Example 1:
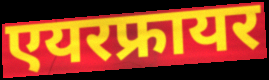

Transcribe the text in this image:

एयरफ्रायर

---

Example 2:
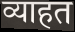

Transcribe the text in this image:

व्याहत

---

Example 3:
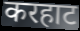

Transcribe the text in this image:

करहाट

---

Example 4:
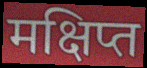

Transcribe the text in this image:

मक्षिप्त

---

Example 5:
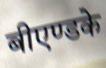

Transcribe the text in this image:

बीएण्डके